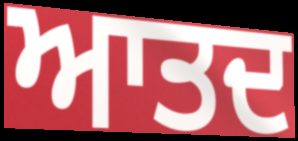
ਆਤਦ